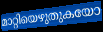
മാറ്റിയെഴുതുകയോ